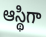
ఆస్థిగా